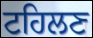
ਟਹਿਲਣ